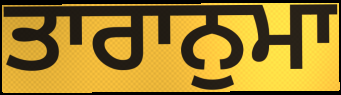
ਤਾਰਾਨੁਮਾ